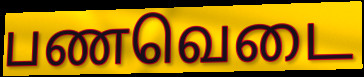
பணவெடை